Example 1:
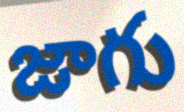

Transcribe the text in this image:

జాగు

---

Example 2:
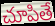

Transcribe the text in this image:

చూపితే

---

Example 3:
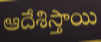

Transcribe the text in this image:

ఆదేశిస్తాయి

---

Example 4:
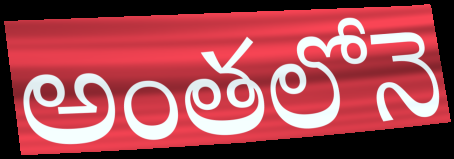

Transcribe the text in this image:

అంతలోనె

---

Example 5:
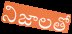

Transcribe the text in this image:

నిజాలతో